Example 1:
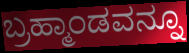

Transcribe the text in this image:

ಬ್ರಹ್ಮಾಂಡವನ್ನೂ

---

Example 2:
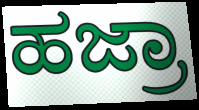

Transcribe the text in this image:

ಹಜ್ರಾ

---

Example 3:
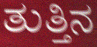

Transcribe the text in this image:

ತುತ್ತಿನ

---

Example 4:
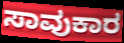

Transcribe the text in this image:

ಸಾವುಕಾರ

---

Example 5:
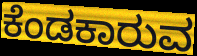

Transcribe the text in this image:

ಕೆಂಡಕಾರುವ